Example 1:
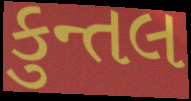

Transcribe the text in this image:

કુન્તલ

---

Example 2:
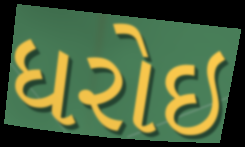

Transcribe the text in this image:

ધરોઇ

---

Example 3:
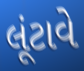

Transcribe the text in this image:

લૂંટાવે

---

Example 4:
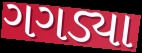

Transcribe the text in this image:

ગગડ્યા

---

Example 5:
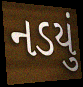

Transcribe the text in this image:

નડયું